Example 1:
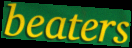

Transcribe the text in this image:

beaters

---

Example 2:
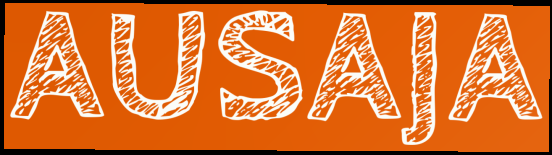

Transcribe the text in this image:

AUSAJA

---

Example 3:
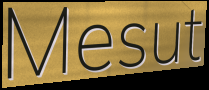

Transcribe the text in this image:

Mesut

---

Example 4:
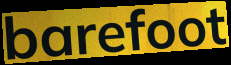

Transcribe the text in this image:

barefoot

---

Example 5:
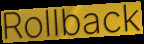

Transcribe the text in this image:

Rollback